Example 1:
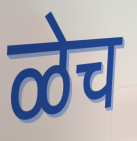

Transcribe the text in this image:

ळेच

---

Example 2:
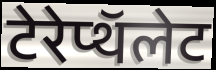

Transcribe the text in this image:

टेरेप्थॅलेट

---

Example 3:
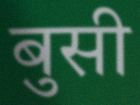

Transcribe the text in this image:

बुसी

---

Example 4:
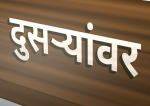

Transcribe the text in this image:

दुसर्‍यांवर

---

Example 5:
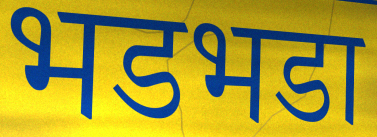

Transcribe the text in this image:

भडभडा